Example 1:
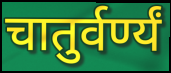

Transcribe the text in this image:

चातुर्वर्ण्यं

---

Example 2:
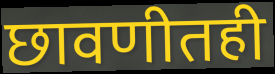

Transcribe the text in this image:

छावणीतही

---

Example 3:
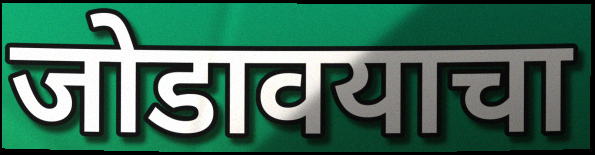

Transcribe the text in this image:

जोडावयाचा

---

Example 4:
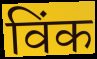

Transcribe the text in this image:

विंक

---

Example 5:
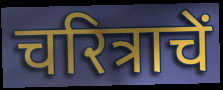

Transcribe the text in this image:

चरित्राचें